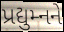
પ્રદ્યુમ્નને